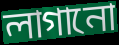
লাগানো